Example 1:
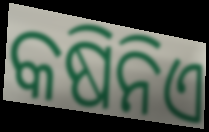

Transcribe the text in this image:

କଷିନିଏ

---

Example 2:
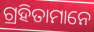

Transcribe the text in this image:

ଗ୍ରହିତାମାନେ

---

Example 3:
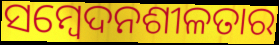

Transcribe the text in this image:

ସମ୍ୱେଦନଶୀଳତାର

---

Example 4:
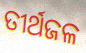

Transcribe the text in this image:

ତୀର୍ଥଜଳ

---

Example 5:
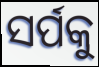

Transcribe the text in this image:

ସର୍ପକୁ